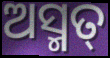
ଅସ୍ମତ୍